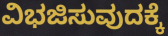
ವಿಭಜಿಸುವುದಕ್ಕೆ